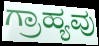
ಗ್ರಾಹ್ಯವು